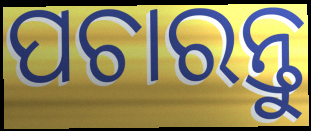
ପଚାରନ୍ତୁ